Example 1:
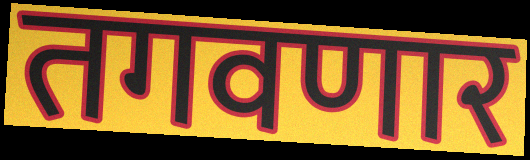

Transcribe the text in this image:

तगवणार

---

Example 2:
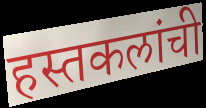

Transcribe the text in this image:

हस्तकलांची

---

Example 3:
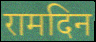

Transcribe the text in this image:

रामदिन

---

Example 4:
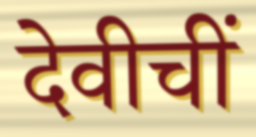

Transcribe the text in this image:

देवीचीं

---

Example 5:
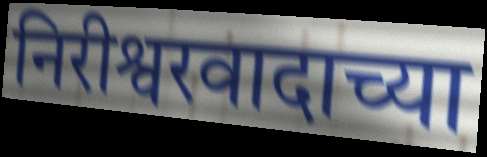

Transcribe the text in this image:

निरीश्वरवादाच्या